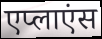
एप्लाएंस